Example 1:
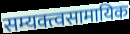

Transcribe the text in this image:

सम्यक्त्वसामायिक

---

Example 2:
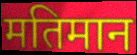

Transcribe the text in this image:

मतिमान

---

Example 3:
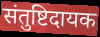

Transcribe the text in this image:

संतुष्टिदायक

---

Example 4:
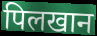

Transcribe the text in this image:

पिलखान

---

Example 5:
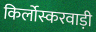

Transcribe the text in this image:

किर्लोस्करवाड़ी